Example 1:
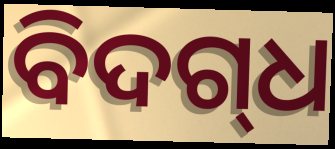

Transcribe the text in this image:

ବିଦଗ୍‍ଧ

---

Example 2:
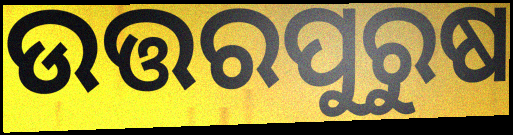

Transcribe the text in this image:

ଉତ୍ତରପୁରୁଷ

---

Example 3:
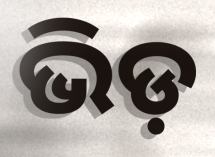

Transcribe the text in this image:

ଭିଡ଼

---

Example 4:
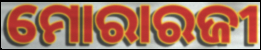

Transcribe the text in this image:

ମୋରାରଜୀ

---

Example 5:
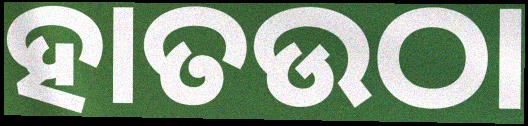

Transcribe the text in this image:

ହାତଉଠା